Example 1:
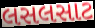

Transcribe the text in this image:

લસલસાટ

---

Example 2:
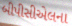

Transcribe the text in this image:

બીપીસીએલના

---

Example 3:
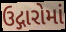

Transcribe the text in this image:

ઉદ્ગારોમાં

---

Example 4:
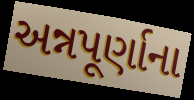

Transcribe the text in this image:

અન્નપૂર્ણાના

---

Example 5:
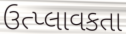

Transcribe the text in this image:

ઉત્પ્લાવકતા